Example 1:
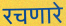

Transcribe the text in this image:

रचणारे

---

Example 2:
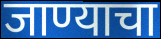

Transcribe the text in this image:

जाण्‍याचा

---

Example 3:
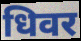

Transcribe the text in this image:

धिवर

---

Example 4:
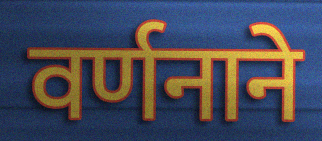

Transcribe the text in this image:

वर्णनाने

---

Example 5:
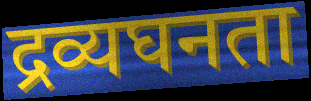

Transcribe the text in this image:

द्रव्यघनता